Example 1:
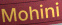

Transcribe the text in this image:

Mohini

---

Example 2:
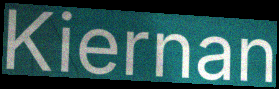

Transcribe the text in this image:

Kiernan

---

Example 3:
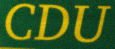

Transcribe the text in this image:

CDU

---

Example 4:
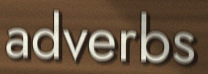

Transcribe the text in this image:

adverbs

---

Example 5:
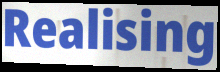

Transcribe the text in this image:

Realising